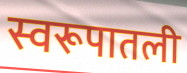
स्वरूपातली